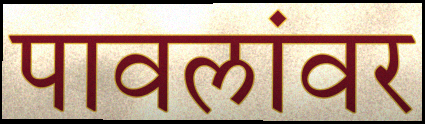
पावलांवर